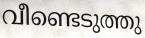
വീണ്ടെടുത്തു